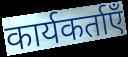
कार्यकर्ताएँ